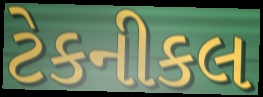
ટેકનીકલ